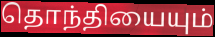
தொந்தியையும்